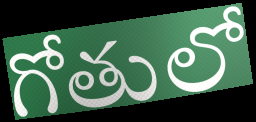
గోతులో